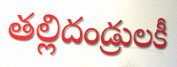
తల్లిదండ్రులకీ